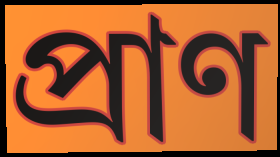
প্রাণ